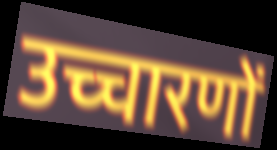
उच्चारणों